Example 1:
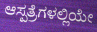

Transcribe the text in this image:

ಆಸ್ಪತ್ರೆಗಳಲ್ಲಿಯೇ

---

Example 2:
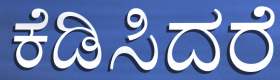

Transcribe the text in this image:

ಕೆಡಿಸಿದರೆ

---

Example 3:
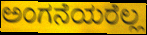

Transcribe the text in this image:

ಅಂಗನೆಯರೆಲ್ಲ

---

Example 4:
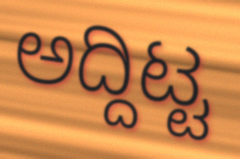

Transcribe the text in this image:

ಅದ್ದಿಟ್ಟ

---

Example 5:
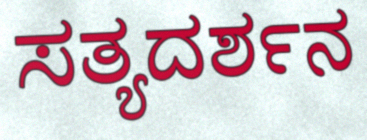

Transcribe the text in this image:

ಸತ್ಯದರ್ಶನ